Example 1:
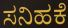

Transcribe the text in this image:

ಸನಿಹಕೆ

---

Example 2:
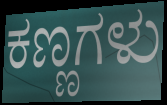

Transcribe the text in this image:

ಕಣ್ಣಗಳು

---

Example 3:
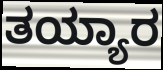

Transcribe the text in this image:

ತಯ್ಯಾರ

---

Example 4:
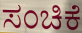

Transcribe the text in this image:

ಸಂಚಿಕೆ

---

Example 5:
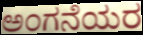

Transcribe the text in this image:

ಅಂಗನೆಯರ